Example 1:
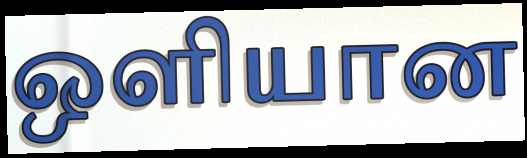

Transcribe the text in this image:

ஒளியான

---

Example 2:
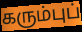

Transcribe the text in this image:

கரும்புப்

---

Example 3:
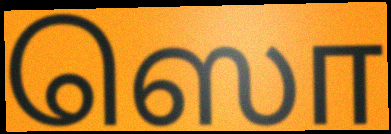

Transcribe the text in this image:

ஸொ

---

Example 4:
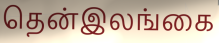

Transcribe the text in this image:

தென்இலங்கை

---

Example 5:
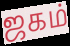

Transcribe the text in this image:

ஜகம்